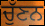
ਚੁੱਣਨ